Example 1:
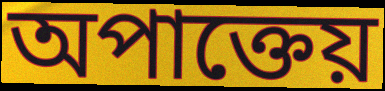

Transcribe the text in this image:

অপাক্তেয়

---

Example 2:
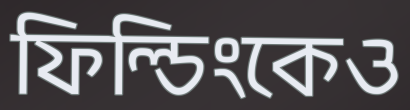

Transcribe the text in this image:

ফিল্ডিংকেও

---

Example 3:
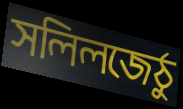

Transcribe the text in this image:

সলিলজেঠু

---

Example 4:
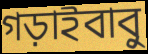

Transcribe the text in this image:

গড়াইবাবু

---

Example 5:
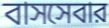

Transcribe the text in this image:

বাসসেবার